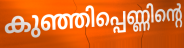
കുഞ്ഞിപ്പെണ്ണിന്റെ